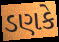
ડણકે